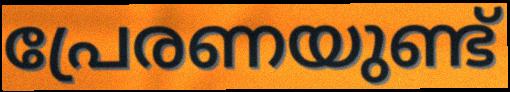
പ്രേരണയുണ്ട്